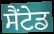
ਸੈਂਟੇਡ